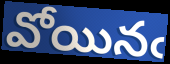
వోయినఁ